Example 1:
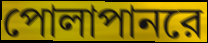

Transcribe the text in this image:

পোলাপানরে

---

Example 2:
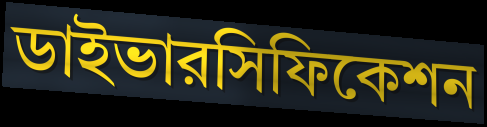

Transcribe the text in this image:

ডাইভারসিফিকেশন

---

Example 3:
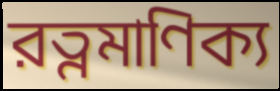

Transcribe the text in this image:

রত্নমাণিক্য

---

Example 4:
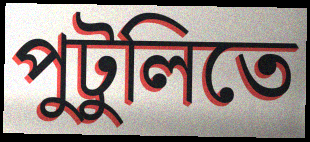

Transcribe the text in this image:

পুটুলিতে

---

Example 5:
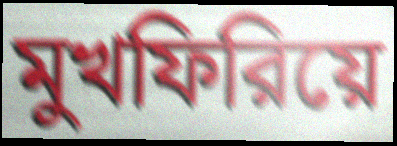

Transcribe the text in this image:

মুখফিরিয়ে